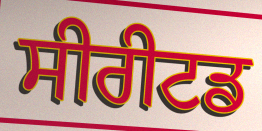
ਸੀਰੀਟਡ